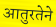
आतुरतेने